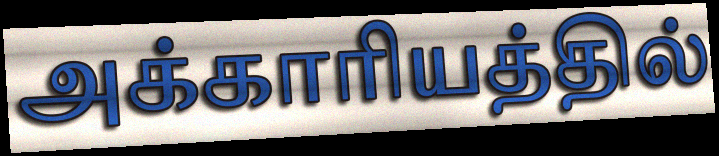
அக்காரியத்தில்